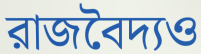
রাজবৈদ্যও